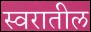
स्वरातील